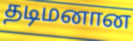
தடிமனான